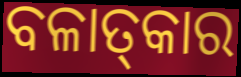
ବଳାତ୍‌କାର